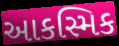
આકસ્મિક